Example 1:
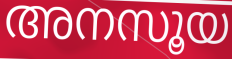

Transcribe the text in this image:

അനസൂയ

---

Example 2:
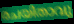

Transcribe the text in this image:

രചയിതാവു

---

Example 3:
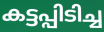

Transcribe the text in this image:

കട്ടപ്പിടിച്ച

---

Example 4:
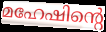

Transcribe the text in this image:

മഹേഷിന്റെ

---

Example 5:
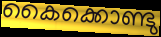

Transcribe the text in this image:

കൈക്കൊണ്ടു